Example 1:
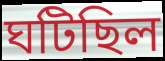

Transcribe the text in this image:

ঘটিছিল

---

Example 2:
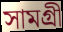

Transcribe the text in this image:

সামগ্ৰী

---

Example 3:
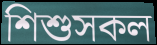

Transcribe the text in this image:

শিশুসকল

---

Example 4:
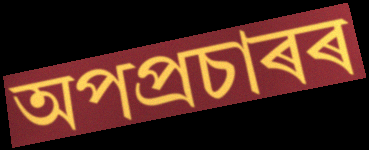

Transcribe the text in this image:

অপপ্ৰচাৰৰ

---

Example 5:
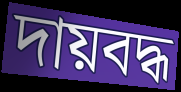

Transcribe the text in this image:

দায়বদ্ধ